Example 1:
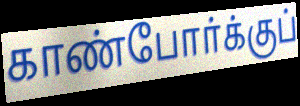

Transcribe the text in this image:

காண்போர்க்குப்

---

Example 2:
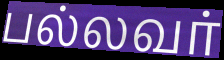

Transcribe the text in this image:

பல்லவர்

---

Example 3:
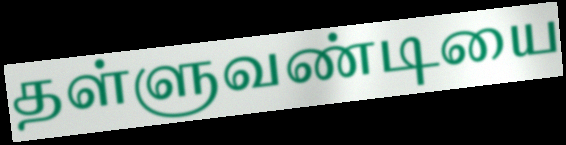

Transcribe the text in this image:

தள்ளுவண்டியை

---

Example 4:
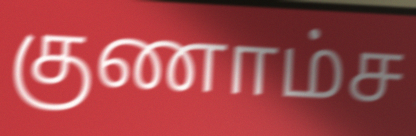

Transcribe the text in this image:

குணாம்ச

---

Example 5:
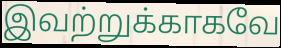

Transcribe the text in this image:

இவற்றுக்காகவே